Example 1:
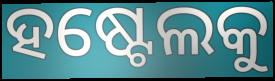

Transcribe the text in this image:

ହଷ୍ଟେଲକୁ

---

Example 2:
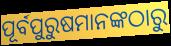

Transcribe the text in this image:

ପୂର୍ବପୁରୁଷମାନଙ୍କଠାରୁ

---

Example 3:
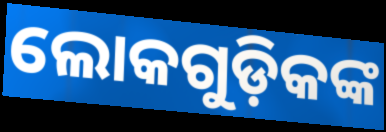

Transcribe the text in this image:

ଲୋକଗୁଡ଼ିକଙ୍କ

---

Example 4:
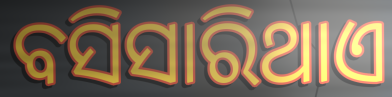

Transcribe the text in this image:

ବସିସାରିଥାଏ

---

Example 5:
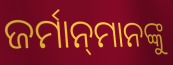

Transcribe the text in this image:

ଜର୍ମାନ୍‌ମାନଙ୍କୁ